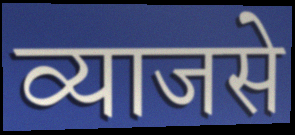
व्याजसे